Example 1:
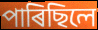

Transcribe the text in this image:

পাৰিছিলে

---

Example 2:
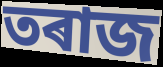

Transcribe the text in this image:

তৰাজ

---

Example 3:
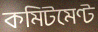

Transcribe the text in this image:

কমিটমেণ্ট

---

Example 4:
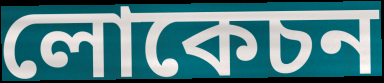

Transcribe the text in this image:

লোকেচন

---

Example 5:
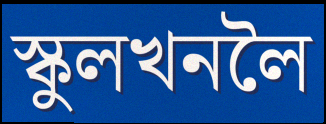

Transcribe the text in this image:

স্কুলখনলৈ